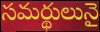
సమర్థులునై